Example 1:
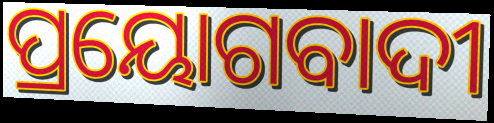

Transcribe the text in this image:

ପ୍ରୟୋଗବାଦୀ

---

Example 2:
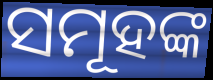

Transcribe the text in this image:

ସମୂହଙ୍କ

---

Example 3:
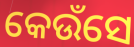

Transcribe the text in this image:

କେଉଁସେ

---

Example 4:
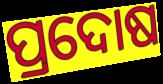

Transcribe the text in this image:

ପ୍ରଦୋଷ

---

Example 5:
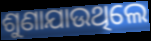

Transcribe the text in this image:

ଶୁଣାଯାଉଥିଲେ